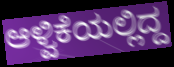
ಆಳ್ವಿಕೆಯಲ್ಲಿದ್ದ